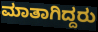
ಮಾತಾಗಿದ್ದರು